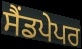
ਸੈਂਡਪੇਪਰ